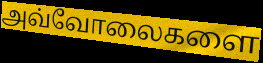
அவ்வோலைகளை